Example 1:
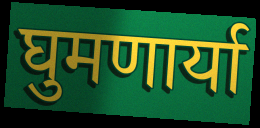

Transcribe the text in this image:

घुमणार्या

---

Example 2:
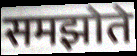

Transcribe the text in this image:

समझोते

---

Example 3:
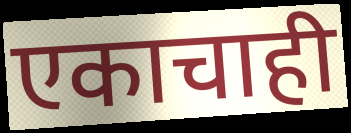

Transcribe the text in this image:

एकाचाही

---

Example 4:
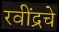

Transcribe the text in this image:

रवींद्रचे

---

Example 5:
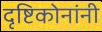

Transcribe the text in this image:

दृष्टिकोनांनी